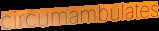
circumambulates